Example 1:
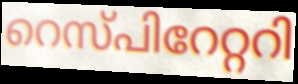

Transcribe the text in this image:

റെസ്പിറേറ്ററി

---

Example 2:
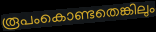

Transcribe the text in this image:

രൂപംകൊണ്ടതെങ്കിലും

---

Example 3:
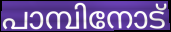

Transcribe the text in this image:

പാമ്പിനോട്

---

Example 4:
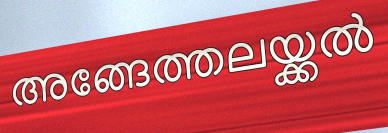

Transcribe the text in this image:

അങ്ങേത്തലയ്ക്കൽ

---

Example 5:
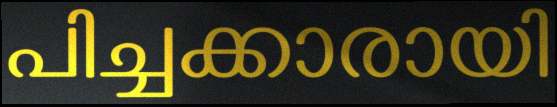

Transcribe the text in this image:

പിച്ചക്കാരായി